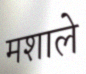
मशाले